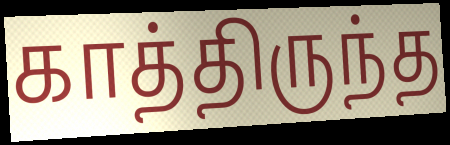
காத்திருந்த